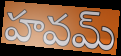
హవమ్